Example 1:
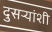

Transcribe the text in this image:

दुसर्‍यांशी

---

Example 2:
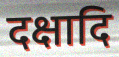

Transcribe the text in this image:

दक्षादि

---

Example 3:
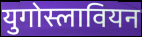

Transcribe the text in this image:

युगोस्लावियन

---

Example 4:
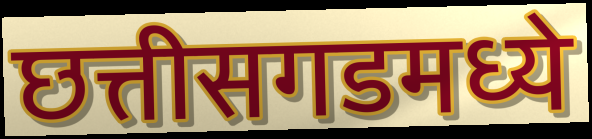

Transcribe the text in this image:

छत्तीसगडमध्ये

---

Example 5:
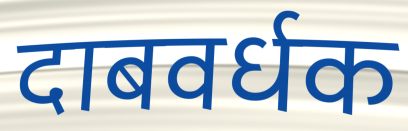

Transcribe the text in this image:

दाबवर्धक